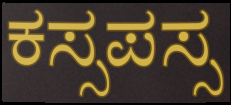
ಕಸ್ಸಪಸ್ಸ